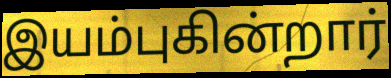
இயம்புகின்றார்